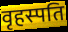
वृहस्पति